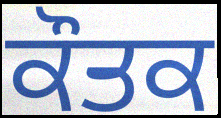
ਕੌਤਕ